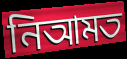
নিআমত